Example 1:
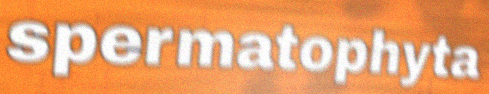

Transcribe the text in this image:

spermatophyta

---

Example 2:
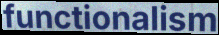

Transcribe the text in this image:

functionalism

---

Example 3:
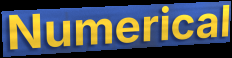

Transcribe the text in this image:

Numerical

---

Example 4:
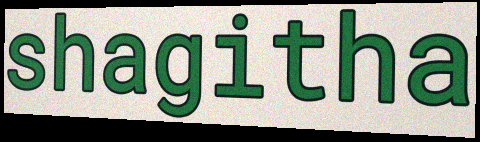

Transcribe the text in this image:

shagitha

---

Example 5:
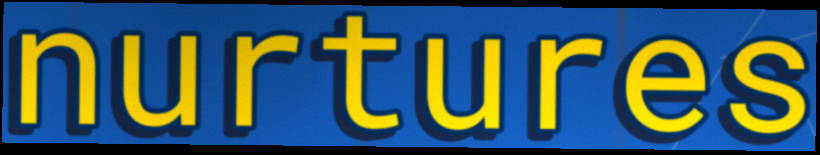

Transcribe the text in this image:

nurtures